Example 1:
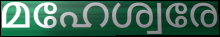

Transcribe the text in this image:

മഹേശ്വരേ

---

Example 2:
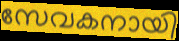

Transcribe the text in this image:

സേവകനായി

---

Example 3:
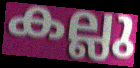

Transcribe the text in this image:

കല്ലു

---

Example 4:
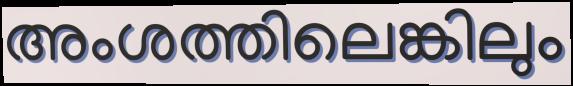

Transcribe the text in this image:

അംശത്തിലെങ്കിലും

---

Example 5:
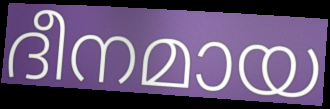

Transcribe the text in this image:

ദീനമായ